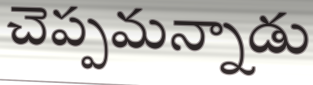
చెప్పమన్నాడు